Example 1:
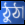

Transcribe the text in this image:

ঠুঠা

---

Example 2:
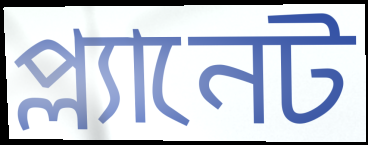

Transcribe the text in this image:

প্ল্যানেট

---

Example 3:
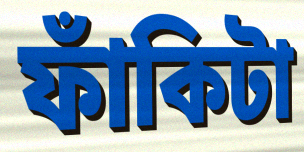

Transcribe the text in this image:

ফাঁকিটা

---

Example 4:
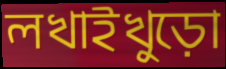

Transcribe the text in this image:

লখাইখুড়ো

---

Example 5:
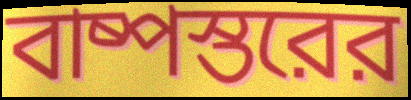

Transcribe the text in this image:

বাষ্পস্তরের